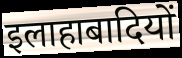
इलाहाबादियों